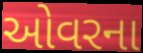
ઓવરના